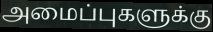
அமைப்புகளுக்கு